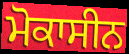
ਮੋਕਾਸੀਨ